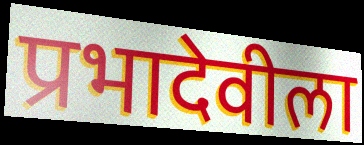
प्रभादेवीला